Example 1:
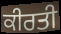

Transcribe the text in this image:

ਕੀਰਤੀ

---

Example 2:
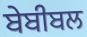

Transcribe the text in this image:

ਬੇਬੀਬਲ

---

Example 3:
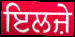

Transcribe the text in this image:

ਇਲਜ਼ੇ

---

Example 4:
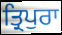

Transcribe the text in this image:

ਤ੍ਰਿਪੁਰਾ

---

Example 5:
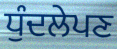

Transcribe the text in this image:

ਧੁੰਦਲੇਪਣ